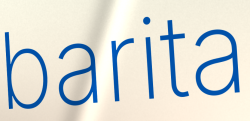
barita